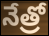
నేత్రో